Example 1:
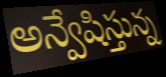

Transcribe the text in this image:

అన్వేషిస్తున్న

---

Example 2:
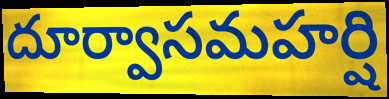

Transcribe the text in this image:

దూర్వాసమహర్షి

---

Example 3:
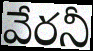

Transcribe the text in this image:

వేరనీ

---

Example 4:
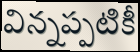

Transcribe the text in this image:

విన్నప్పటికీ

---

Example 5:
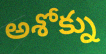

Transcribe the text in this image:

అశోక్ను